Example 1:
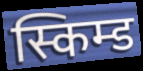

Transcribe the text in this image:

स्किम्ड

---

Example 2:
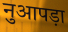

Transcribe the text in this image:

नुआपड़ा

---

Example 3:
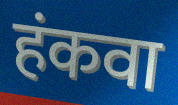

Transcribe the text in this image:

हंकवा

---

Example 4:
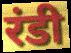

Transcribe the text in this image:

रंडी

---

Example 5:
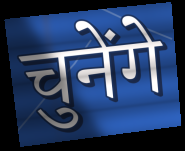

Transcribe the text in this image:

चुनेंगे